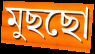
মুছছো